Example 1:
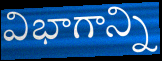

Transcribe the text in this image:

విభాగాన్ని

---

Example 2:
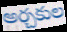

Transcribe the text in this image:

అర్చకుల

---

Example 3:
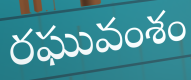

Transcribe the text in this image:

రఘువంశం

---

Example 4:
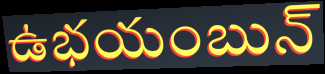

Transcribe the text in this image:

ఉభయంబున్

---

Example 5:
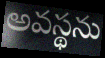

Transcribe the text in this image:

అవస్థను